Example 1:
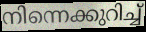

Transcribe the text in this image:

നിന്നെക്കുറിച്ച്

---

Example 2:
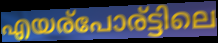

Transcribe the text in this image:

എയര്പോര്ട്ടിലെ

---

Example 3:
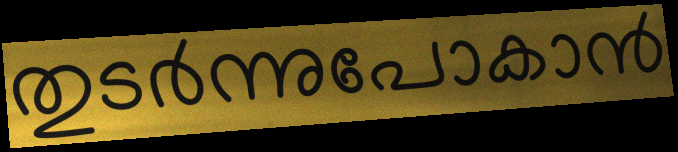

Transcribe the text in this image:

തുടർന്നുപോകാൻ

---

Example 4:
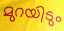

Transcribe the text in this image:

മുറയിടും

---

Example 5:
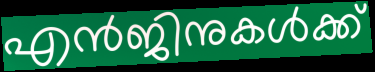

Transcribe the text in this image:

എൻജിനുകൾക്ക്